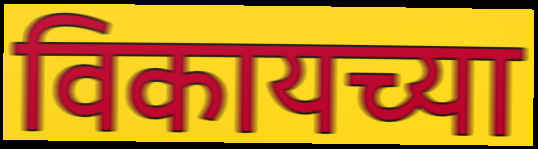
विकायच्या